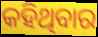
କହିଥିବାର